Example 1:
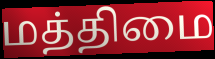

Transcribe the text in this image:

மத்திமை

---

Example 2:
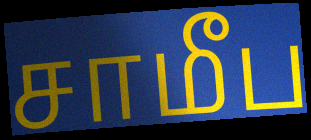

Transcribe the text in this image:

சாமீப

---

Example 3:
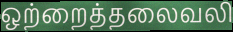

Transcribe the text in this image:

ஒற்றைத்தலைவலி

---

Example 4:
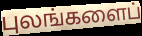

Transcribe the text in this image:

புலங்களைப்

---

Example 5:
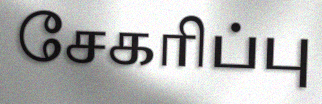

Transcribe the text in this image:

சேகரிப்பு